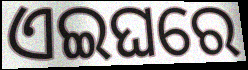
ଏଇଘରେ